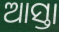
ଆସ୍ତା